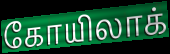
கோயிலாக்